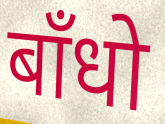
बाँधो